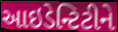
આઇડેન્ટિટીને